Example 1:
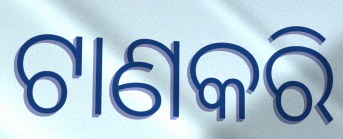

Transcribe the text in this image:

ଟାଣକରି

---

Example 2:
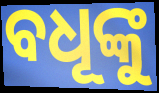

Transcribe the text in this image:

ବଧୂଙ୍କୁ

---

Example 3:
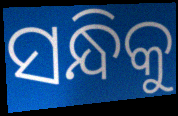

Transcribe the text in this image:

ସନ୍ଧିକୁ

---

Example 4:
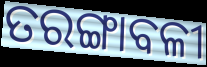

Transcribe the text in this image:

ତରଙ୍ଗାବଳୀ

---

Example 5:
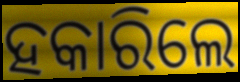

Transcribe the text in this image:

ହକାରିଲେ